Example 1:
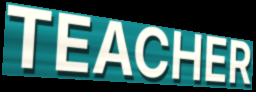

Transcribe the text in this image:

TEACHER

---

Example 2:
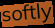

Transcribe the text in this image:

softly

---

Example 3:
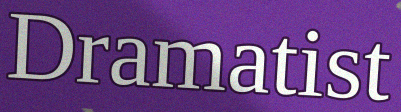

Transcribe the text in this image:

Dramatist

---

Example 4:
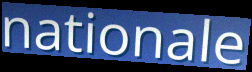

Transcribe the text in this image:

nationale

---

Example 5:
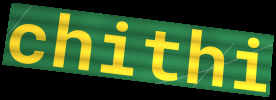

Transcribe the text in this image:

chithi